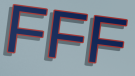
FFF